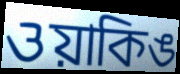
ওয়াকিঙ